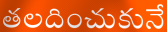
తలదించుకునే